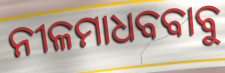
ନୀଳମାଧବବାବୁ